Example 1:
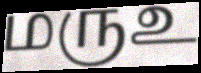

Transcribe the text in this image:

மருஉ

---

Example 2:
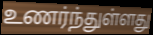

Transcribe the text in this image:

உணர்ந்துள்ளது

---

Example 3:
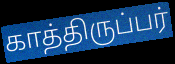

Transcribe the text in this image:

காத்திருப்பர்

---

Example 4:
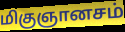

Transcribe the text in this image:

மிகுஞானசம்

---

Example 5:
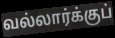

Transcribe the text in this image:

வல்லார்க்குப்